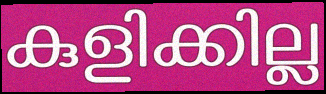
കുളിക്കില്ല